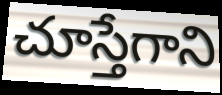
చూస్తేగాని